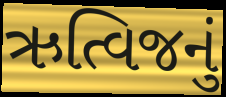
ઋત્વિજનું